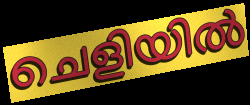
ചെളിയിൽ